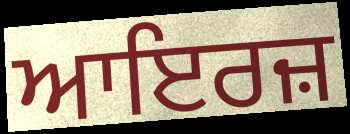
ਆਇਰਜ਼